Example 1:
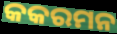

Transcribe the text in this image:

କକରମନ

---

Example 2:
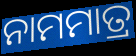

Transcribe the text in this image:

ନାମମାତ୍ର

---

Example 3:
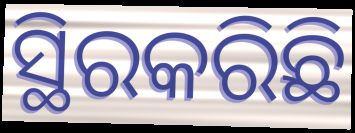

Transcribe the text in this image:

ସ୍ଥିରକରିଛି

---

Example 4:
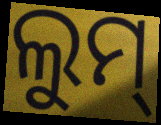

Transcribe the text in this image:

ଲୁମ୍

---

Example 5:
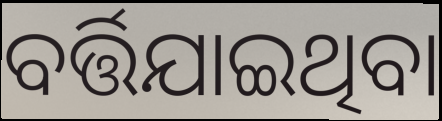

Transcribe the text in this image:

ବର୍ତ୍ତିଯାଇଥିବା